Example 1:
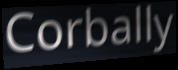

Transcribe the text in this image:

Corbally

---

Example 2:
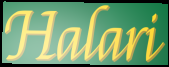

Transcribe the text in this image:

Halari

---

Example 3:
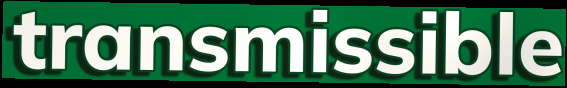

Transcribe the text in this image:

transmissible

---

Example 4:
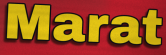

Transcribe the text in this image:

Marat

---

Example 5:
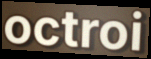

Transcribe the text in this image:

octroi